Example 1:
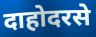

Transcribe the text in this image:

दाहोदरसे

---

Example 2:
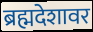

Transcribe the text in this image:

ब्रह्मदेशावर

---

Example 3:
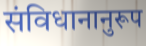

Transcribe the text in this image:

संविधानानुरूप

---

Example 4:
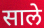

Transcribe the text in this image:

साले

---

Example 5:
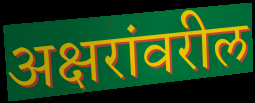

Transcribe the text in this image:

अक्षरांवरील